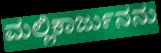
ಮಲ್ಲಿಕಾರ್ಜುನನು